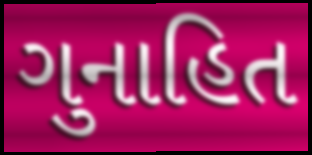
ગુનાહિત